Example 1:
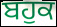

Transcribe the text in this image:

ਬਹੁਕ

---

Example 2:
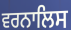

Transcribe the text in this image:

ਵਰਨਾਲਿਸ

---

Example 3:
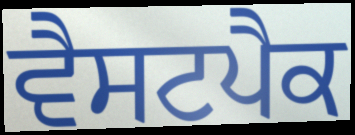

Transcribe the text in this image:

ਵੈਸਟਪੈਕ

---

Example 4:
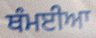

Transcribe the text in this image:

ਥੰਮਈਆ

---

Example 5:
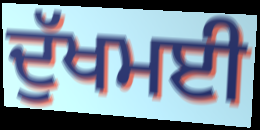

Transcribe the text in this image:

ਦੁੱਖਮਈ